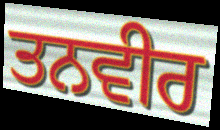
ਤਨਵੀਰ